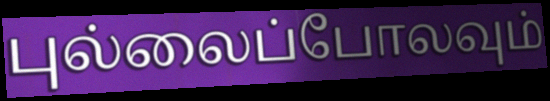
புல்லைப்போலவும்